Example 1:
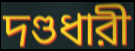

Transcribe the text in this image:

দণ্ডধারী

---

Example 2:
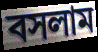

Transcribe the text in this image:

বসলাম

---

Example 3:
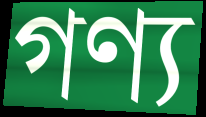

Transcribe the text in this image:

গণ্য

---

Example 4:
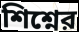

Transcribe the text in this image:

শিশ্নের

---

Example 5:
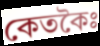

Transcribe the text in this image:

কেতকৈঃ